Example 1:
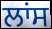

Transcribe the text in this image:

ਲਾਂਸ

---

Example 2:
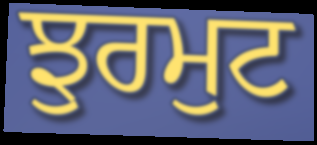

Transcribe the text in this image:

ਝੁਰਮੁਟ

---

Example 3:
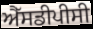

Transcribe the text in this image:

ਐੱਸਡੀਪੀਸੀ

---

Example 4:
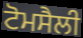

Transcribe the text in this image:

ਟੋਮਸੈਲੀ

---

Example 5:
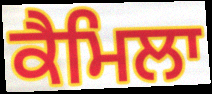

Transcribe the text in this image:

ਕੈਮਿਲਾ